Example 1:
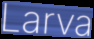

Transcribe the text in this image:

Larva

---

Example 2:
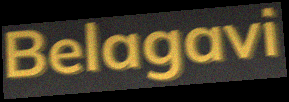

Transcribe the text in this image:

Belagavi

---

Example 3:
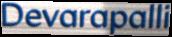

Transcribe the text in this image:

Devarapalli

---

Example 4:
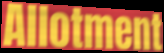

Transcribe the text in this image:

Allotment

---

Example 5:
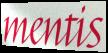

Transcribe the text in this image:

mentis